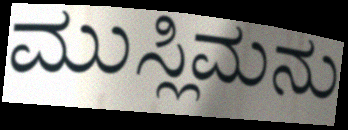
ಮುಸ್ಲಿಮನು